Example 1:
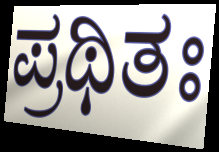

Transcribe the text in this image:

ಪ್ರಥಿತಃ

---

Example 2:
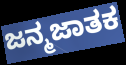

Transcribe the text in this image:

ಜನ್ಮಜಾತಕ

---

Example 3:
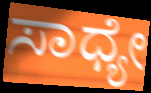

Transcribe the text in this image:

ಸಾಧ್ಯೇ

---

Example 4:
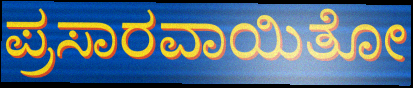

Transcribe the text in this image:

ಪ್ರಸಾರವಾಯಿತೋ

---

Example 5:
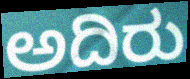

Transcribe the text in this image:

ಅದಿರು